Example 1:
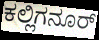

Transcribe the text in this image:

ಕಲ್ಲಿಗನೂರ್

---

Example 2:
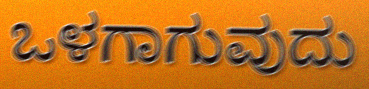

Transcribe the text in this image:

ಒಳಗಾಗುವುದು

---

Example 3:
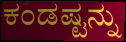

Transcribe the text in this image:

ಕಂಡಷ್ಟನ್ನು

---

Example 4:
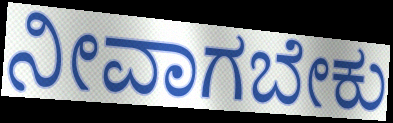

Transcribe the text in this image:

ನೀವಾಗಬೇಕು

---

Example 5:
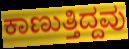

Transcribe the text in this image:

ಕಾಣುತ್ತಿದ್ದವು